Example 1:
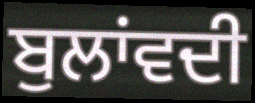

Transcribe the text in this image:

ਬੁਲਾਂਵਦੀ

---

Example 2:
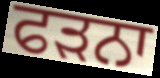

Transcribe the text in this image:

ਫੜਨਾ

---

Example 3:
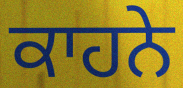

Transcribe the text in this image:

ਕਾਹਨੇ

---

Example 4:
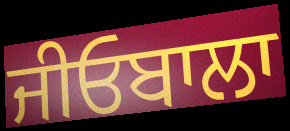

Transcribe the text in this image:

ਜੀਓਬਾਲਾ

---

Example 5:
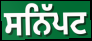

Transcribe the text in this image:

ਸਨਿੱਪਟ